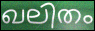
ഖലിതം